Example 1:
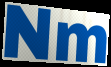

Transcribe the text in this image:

Nm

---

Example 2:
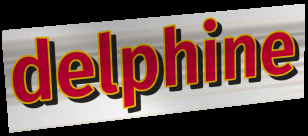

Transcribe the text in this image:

delphine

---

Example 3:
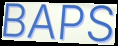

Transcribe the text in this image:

BAPS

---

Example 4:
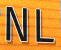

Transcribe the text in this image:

NL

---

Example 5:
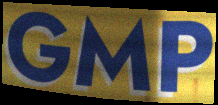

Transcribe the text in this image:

GMP